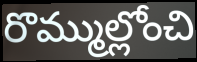
రొమ్ముల్లోంచి